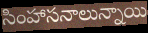
సింహాసనాలున్నాయి